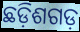
ଛଡ଼ିଶଗଡ଼